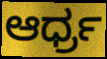
ಆರ್ಧ್ರ